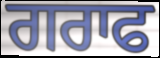
ਗਰਾਫ